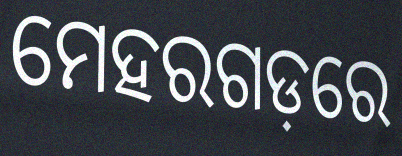
ମେହରଗଡ଼ରେ